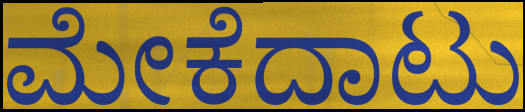
ಮೇಕೆದಾಟು